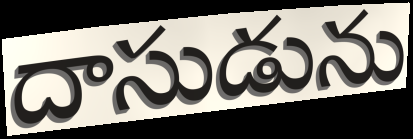
దాసుడును